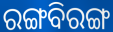
ରଙ୍ଗବିରଙ୍ଗ